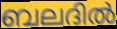
ബലദിൽ